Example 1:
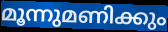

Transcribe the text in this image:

മൂന്നുമണിക്കും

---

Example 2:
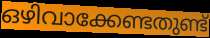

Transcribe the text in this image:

ഒഴിവാക്കേണ്ടതുണ്ട്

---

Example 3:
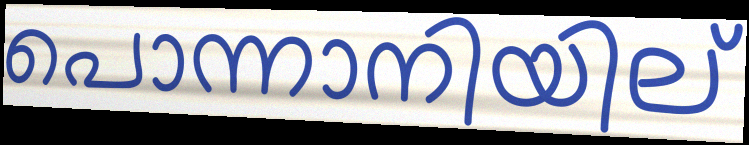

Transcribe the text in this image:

പൊന്നാനിയില്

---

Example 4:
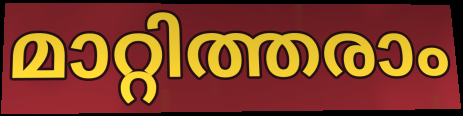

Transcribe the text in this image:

മാറ്റിത്തരാം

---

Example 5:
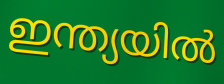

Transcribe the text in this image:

ഇന്ത്യയിൽ